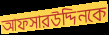
আফসারউদ্দিনকে